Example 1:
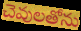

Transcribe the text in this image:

చెవులతోను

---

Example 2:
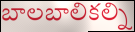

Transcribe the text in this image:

బాలబాలికల్ని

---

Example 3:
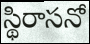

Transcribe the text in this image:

స్థిరాసనో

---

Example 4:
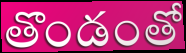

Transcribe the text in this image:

తొండంతో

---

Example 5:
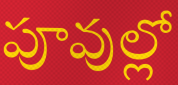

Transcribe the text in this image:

పూవుల్లో